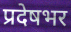
प्रदेषभर